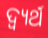
ଦ୍ୱ୍ୟର୍ଥ